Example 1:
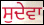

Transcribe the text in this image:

ਸੁਦੇਵਾ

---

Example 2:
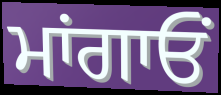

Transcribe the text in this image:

ਮਾਂਗਾਓਂ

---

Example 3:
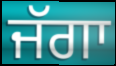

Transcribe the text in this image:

ਜੱਗਾ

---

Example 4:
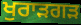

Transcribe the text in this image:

ਖੁਰਾੜਗੜ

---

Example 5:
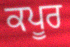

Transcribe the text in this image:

ਕਪੂਰ